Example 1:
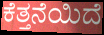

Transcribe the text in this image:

ಕೆತ್ತನೆಯಿದೆ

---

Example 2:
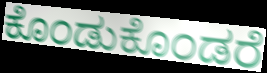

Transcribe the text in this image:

ಕೊಂಡುಕೊಂಡರೆ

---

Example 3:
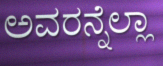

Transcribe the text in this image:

ಅವರನ್ನೆಲ್ಲಾ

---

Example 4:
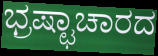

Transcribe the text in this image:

ಭ್ರಷ್ಟಾಚಾರದ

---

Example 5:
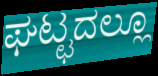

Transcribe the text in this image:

ಘಟ್ಟದಲ್ಲೂ